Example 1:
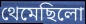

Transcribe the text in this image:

থেমেছিলো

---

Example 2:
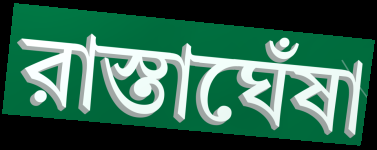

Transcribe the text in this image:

রাস্তাঘেঁষা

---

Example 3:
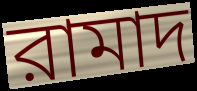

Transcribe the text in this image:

রামাদ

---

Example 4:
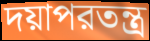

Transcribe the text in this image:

দয়াপরতন্ত্র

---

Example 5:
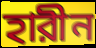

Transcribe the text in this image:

হারীন